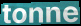
tonne